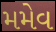
મમેવ